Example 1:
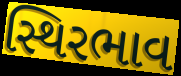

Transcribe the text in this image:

સ્થિરભાવ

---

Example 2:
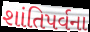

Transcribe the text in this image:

શાંતિપર્વના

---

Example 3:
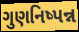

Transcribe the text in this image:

ગુણનિષ્પન્ન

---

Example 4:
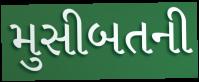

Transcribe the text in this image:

મુસીબતની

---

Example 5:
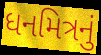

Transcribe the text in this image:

ધનમિત્રનું